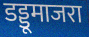
डड्डूमाजरा